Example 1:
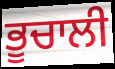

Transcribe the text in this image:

ਭੂਚਾਲੀ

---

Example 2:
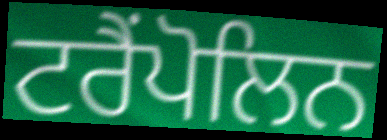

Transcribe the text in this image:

ਟਰੈਂਪੋਲਿਨ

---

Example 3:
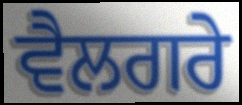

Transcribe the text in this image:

ਵੈਲਗਰੇ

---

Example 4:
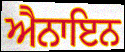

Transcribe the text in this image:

ਐਨਾਇਨ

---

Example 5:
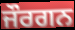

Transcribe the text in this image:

ਜੌਰਗਨ